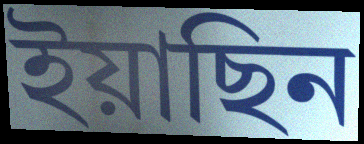
ইয়াছিন